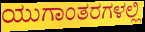
ಯುಗಾಂತರಗಳಲ್ಲಿ